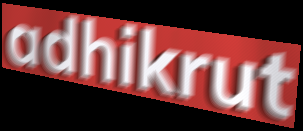
adhikrut